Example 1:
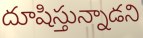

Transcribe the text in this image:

దూషిస్తున్నాడని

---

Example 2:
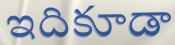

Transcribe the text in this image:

ఇదికూడా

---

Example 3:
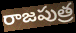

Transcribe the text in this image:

రాజపుత్ర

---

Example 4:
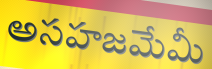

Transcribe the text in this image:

అసహజమేమీ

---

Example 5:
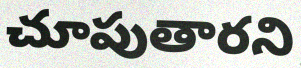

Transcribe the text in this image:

చూపుతారని